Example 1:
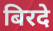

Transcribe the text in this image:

बिरदे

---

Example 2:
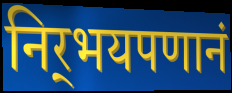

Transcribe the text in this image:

निर्भयपणानं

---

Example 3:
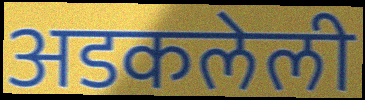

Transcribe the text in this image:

अडकलेली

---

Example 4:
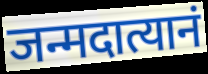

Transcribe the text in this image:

जन्मदात्यानं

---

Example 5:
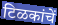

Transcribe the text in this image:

टिळकांचें